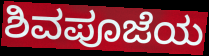
ಶಿವಪೂಜೆಯ